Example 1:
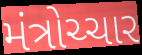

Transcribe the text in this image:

મંત્રોચ્ચાર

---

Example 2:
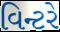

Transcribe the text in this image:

વિન્ટરે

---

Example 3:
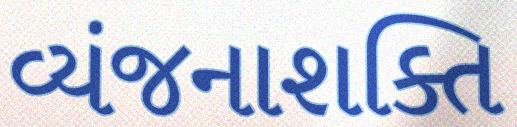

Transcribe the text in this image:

વ્યંજનાશક્તિ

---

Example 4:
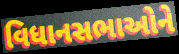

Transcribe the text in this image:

વિધાનસભાઓને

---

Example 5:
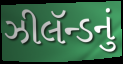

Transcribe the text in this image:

ઝીલૅન્ડનું